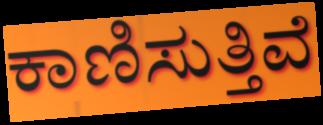
ಕಾಣಿಸುತ್ತಿವೆ